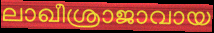
ലാഖീശ്രാജാവായ